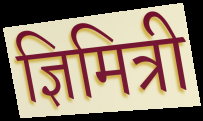
ज्ञिमित्री